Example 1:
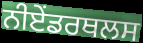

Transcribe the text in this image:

ਨੀਏਂਡਰਥਲਸ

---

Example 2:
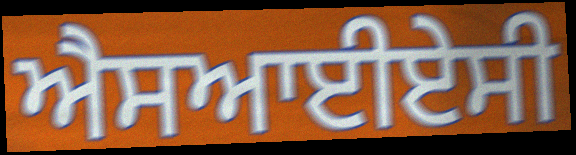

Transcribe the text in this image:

ਐਸਆਈਏਸੀ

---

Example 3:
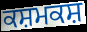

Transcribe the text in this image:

ਕਸ਼ਮਕਸ਼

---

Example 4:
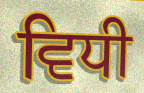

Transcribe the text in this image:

ਵਿਧੀ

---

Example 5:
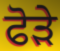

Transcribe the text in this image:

ਫੋੜੇ